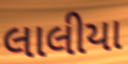
લાલીયા